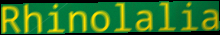
Rhinolalia